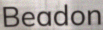
Beadon